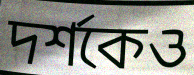
দৰ্শকেও